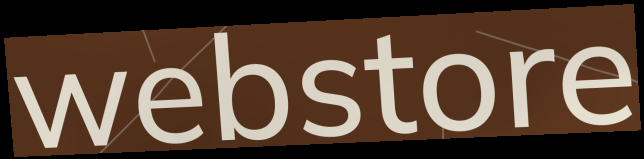
webstore